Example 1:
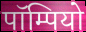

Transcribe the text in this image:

पॉम्पियो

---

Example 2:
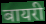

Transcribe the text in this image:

बायरी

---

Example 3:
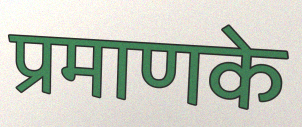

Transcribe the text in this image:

प्रमाणके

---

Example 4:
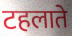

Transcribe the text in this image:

टहलाते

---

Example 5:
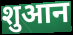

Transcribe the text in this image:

शुआन